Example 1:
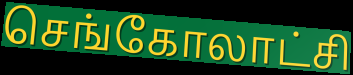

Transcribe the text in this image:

செங்கோலாட்சி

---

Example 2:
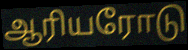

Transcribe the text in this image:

ஆரியரோடு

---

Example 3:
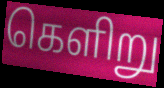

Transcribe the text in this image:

கெளிறு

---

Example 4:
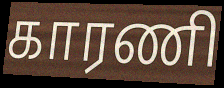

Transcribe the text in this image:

காரணி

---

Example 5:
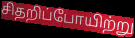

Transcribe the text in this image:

சிதறிப்போயிற்று